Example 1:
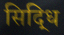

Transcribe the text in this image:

सिद्धि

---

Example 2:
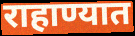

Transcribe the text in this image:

राहाण्यात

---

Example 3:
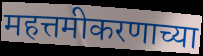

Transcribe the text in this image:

महत्तमीकरणाच्या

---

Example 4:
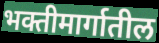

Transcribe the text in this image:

भक्तीमार्गातील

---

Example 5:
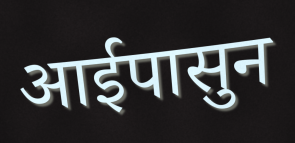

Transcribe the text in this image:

आईपासुन